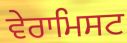
ਵੇਰਾਮਿਸਟ